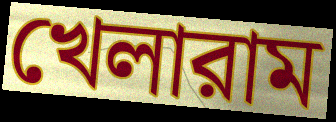
খেলারাম